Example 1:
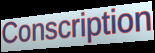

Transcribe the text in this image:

Conscription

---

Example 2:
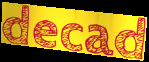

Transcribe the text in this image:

decad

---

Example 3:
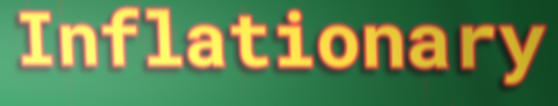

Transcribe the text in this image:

Inflationary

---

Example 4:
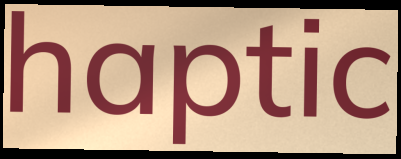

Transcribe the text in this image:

haptic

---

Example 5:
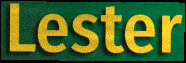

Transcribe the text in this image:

Lester